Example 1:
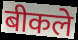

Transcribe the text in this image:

बीकले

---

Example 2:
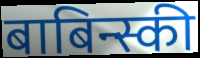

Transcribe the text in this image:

बाबिन्स्की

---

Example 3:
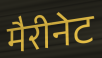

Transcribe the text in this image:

मैरीनेट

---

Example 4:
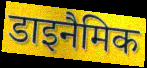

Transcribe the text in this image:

डाइनैमिक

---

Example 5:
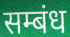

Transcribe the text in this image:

सम्बंध